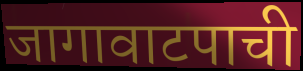
जागावाटपाची